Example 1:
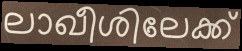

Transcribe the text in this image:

ലാഖീശിലേക്ക്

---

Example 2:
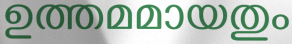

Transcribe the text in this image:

ഉത്തമമായതും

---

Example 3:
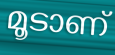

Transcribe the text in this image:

മൂടാണ്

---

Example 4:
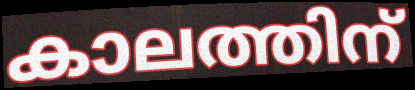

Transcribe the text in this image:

കാലത്തിന്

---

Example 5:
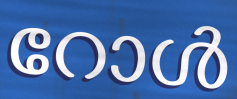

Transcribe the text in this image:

റോൾ